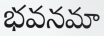
భవనమా